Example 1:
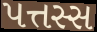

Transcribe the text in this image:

પત્તસ્સ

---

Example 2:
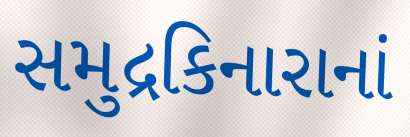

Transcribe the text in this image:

સમુદ્રકિનારાનાં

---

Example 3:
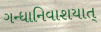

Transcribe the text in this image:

ગન્ધાનિવાશયાત્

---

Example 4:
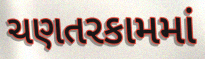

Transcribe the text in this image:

ચણતરકામમાં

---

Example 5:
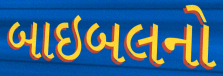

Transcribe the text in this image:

બાઇબલનો